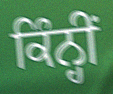
ਕਿੰਨ੍ਹੀਂ